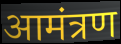
आमंत्रण